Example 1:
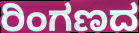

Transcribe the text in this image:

ರಿಂಗಣದ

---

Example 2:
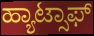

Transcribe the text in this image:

ಹ್ಯಾಟ್ಸಾಫ್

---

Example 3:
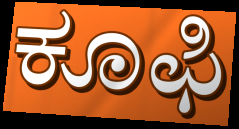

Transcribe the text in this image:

ಕೂಫಿ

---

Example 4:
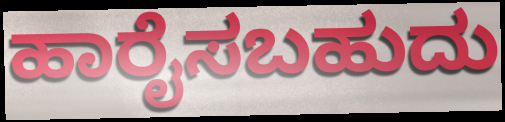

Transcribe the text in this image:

ಹಾರೈಸಬಹುದು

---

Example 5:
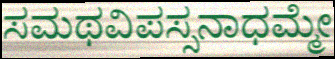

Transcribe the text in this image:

ಸಮಥವಿಪಸ್ಸನಾಧಮ್ಮೇ